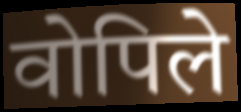
वोपिले